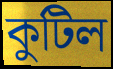
কুটিল